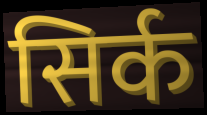
सिर्क